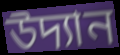
উদ্যান